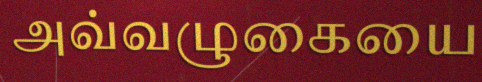
அவ்வழுகையை